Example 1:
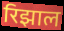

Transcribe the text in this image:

रिझाल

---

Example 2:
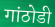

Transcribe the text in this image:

गांठोडी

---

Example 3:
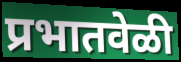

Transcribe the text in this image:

प्रभातवेळी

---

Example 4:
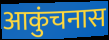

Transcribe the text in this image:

आकुंचनास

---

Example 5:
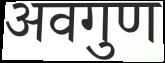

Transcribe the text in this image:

अवगुण